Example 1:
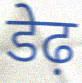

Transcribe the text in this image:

डेढ़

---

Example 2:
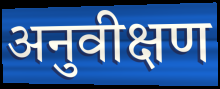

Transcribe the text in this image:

अनुवीक्षण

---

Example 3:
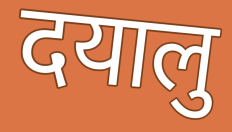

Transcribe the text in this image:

दयालु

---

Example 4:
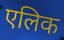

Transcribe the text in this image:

एलिक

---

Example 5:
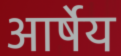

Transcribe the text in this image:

आर्षेय